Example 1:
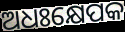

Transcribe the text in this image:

ଅଧଃକ୍ଷେପକ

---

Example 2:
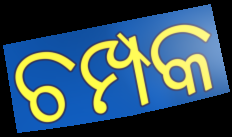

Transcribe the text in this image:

ଚମ୍ପକ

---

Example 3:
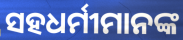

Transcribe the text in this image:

ସହଧର୍ମୀମାନଙ୍କ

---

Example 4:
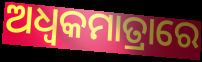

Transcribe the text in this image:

ଅଧ୍ଵକମାତ୍ରାରେ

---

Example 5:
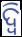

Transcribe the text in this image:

ଦ୍ଵି